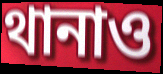
থানাও